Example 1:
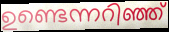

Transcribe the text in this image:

ഉണ്ടെന്നറിഞ്ഞ്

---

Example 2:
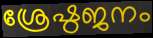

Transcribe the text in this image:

ശ്രേഷ്ഠജനം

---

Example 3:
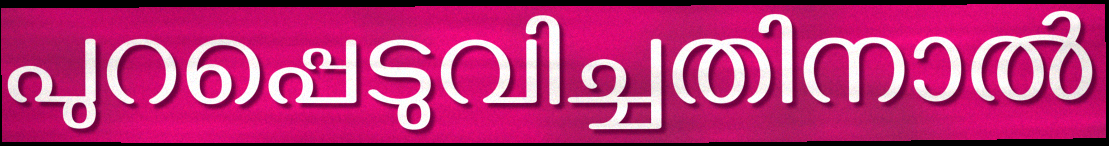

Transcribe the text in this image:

പുറപ്പെടുവിച്ചതിനാൽ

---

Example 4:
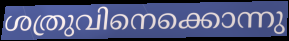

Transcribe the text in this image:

ശത്രുവിനെക്കൊന്നു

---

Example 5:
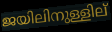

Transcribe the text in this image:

ജയിലിനുള്ളില്